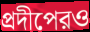
প্রদীপেরও